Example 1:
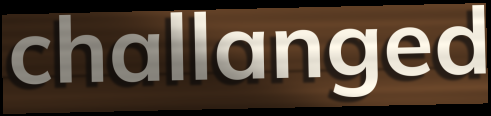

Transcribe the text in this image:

challanged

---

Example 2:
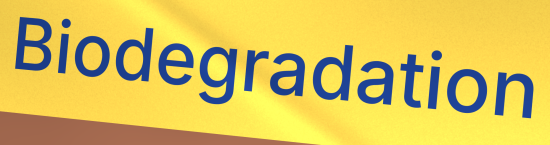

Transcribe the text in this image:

Biodegradation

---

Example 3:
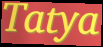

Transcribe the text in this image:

Tatya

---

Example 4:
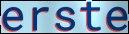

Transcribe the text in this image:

erste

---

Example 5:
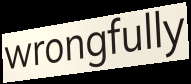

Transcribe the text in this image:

wrongfully